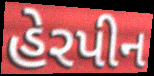
હેરપીન